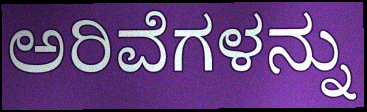
ಅರಿವೆಗಳನ್ನು